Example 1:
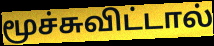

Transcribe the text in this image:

மூச்சுவிட்டால்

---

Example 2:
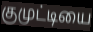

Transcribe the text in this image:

குமுட்டியை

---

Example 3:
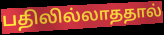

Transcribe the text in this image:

பதிலில்லாததால்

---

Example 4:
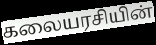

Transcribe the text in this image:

கலையரசியின்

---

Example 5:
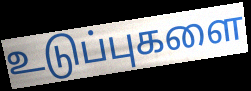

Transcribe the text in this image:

உடுப்புகளை